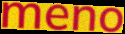
meno